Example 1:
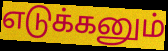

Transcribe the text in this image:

எடுக்கனும்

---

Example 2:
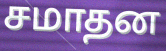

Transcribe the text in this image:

சமாதன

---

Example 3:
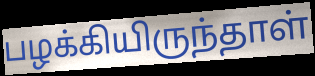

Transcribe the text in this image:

பழக்கியிருந்தாள்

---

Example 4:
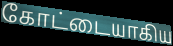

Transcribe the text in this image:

கோட்டையாகிய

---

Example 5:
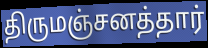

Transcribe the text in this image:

திருமஞ்சனத்தார்